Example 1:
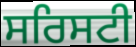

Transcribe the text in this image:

ਸਰਿਸਟੀ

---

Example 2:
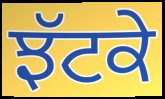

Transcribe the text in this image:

ਝੱਟਕੇ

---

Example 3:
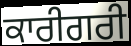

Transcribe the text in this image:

ਕਾਰੀਗਰੀ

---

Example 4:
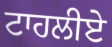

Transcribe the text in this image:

ਟਾਹਲੀਏ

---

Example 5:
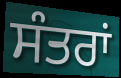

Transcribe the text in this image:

ਸੰਤਰਾਂ